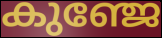
കുഞ്ജേ